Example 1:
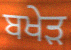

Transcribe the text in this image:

ਬਖੇੜ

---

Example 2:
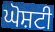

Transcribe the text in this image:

ਘੋਸ਼ਟੀ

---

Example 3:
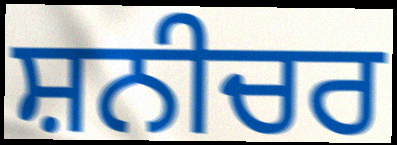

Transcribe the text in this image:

ਸ਼ਨੀਚਰ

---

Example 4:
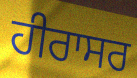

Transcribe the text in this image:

ਹੀਰਾਸਰ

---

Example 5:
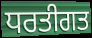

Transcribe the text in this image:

ਧਰਤੀਗਤ